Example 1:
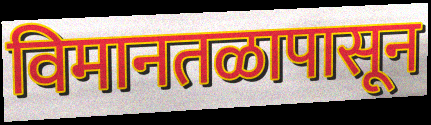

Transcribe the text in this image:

विमानतळापासून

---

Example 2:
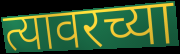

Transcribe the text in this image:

त्यावरच्या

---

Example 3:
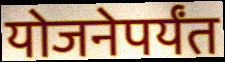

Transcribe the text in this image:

योजनेपर्यंत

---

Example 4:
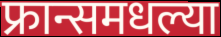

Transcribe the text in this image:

फ्रान्समधल्या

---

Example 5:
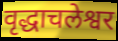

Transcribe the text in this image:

वृद्धाचलेश्वर